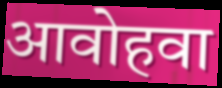
आवोहवा